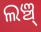
ଲଞ୍ଚ୍